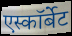
एस्कॉर्बेट